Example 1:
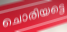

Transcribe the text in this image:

ചൊരിയട്ടെ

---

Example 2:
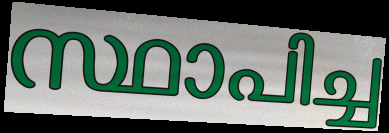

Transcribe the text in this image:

സ്ഥാപിച്ച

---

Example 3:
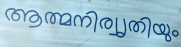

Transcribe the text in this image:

ആത്മനിര്വൃതിയും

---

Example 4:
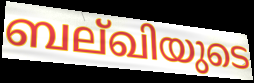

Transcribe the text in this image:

ബല്ഖിയുടെ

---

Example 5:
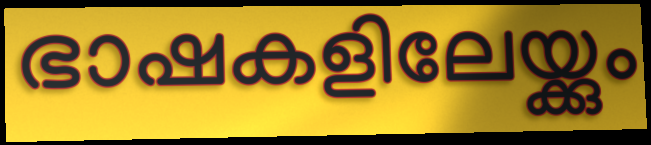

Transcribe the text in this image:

ഭാഷകളിലേയ്ക്കും